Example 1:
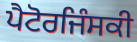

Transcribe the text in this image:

ਪੈਟੋਰਜਿੰਸਕੀ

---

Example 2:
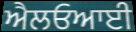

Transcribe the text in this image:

ਐਲਓਆਈ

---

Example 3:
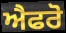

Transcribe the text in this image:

ਐਫਰੋ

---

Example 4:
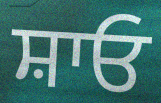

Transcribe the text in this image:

ਸ਼ਾਓ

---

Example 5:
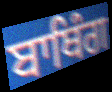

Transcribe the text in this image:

ਬਾਥਿੰਗ